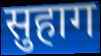
सुहाग